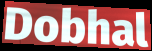
Dobhal